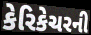
કેરિકેચરની